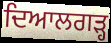
ਦਿਆਲਗੜ੍ਹ